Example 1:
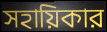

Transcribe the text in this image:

সহায়িকার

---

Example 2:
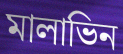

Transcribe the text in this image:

মালাভিন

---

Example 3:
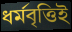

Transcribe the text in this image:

ধর্মবৃত্তিই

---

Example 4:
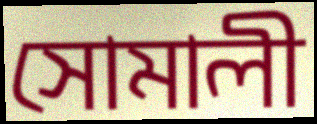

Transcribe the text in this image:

সোমালী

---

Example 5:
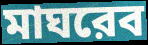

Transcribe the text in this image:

মাঘরেব